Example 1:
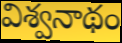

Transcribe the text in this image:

విశ్వనాథం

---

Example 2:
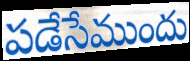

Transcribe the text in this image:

పడేసేముందు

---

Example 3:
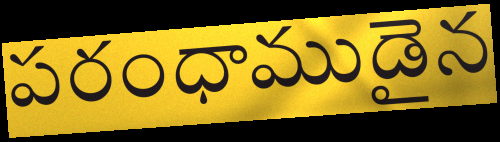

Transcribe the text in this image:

పరంధాముడైన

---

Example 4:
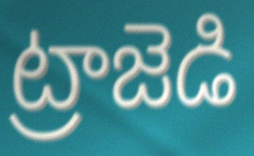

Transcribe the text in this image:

ట్రాజెడి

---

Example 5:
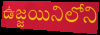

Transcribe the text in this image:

ఉజ్జయినిలోని